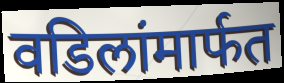
वडिलांमार्फत